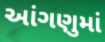
આંગણુમાં